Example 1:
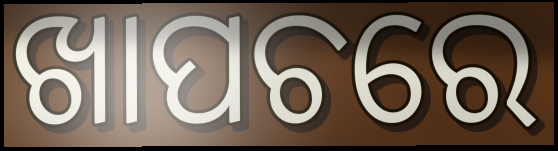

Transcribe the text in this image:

ଖାପଚରେ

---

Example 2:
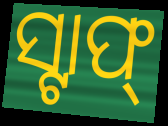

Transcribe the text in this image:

ସ୍ଟାଫ୍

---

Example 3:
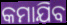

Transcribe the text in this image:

କମାଯିବ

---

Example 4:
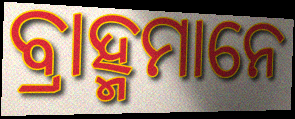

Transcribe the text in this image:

ବ୍ରାହ୍ମମାନେ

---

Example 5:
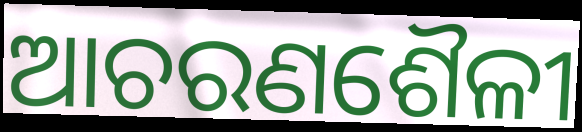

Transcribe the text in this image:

ଆଚରଣଶୈଳୀ